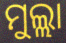
ମୁଲ୍ଲା